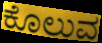
ಕೊಲುವ